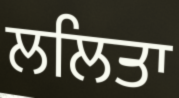
ਲਲਿਤਾ